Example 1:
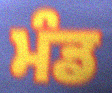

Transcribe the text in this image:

ਮੰਡ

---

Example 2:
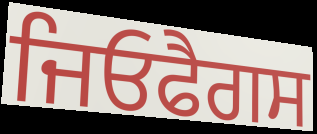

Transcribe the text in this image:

ਜਿਓਫੈਗਸ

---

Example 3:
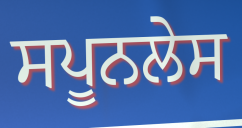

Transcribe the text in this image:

ਸਪੂਨਲੇਸ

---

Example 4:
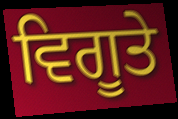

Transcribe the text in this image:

ਵਿਗੂਤੇ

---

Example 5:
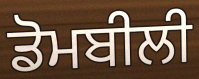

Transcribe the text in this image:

ਡੋਮਬੀਲੀ